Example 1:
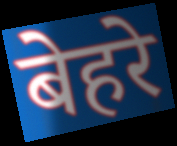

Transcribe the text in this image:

बेहरे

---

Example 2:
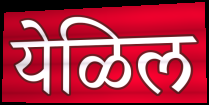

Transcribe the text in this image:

येळिल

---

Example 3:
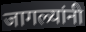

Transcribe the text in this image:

जागल्यांनी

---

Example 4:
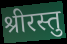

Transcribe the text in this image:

श्रीरस्तु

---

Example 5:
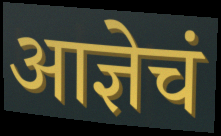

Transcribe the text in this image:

आज्ञेचं